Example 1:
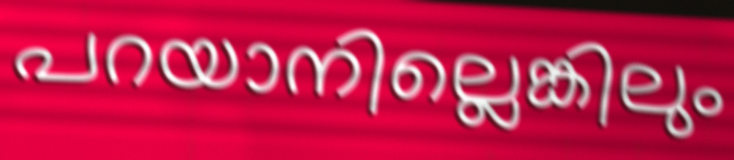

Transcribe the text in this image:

പറയാനില്ലെങ്കിലും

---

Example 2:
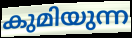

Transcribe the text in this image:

കുമിയുന്ന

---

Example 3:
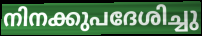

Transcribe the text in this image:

നിനക്കുപദേശിച്ചു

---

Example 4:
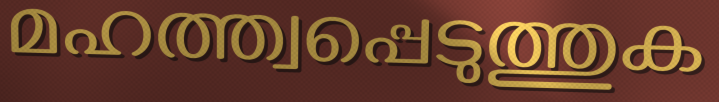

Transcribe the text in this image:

മഹത്ത്വപ്പെടുത്തുക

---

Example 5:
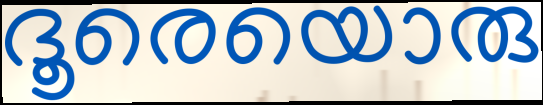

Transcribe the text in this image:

ദൂരെയൊരു